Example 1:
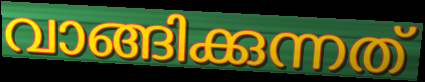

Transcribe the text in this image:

വാങ്ങിക്കുന്നത്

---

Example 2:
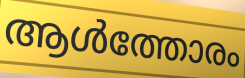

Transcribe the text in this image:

ആൾത്തോരം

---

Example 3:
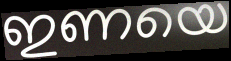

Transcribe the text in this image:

ഇണയെ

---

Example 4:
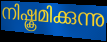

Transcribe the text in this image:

നിഷ്ക്രമിക്കുന്നു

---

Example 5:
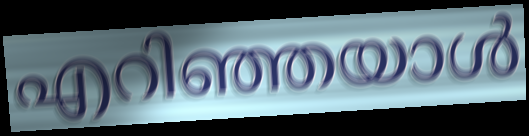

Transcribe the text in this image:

എറിഞ്ഞയാൾ